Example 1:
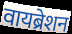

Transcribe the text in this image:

वायब्रेशन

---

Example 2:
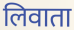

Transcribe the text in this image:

लिवाता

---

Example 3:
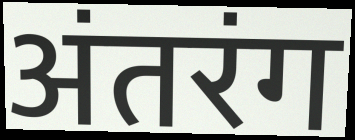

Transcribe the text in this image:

अंतरंग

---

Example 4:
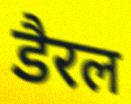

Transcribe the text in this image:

डैरल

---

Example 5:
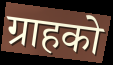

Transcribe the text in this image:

ग्राहको